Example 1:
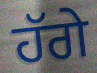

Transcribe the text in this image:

ਹੱਗੇ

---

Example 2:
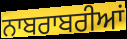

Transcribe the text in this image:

ਨਾਬਰਾਬਰੀਆਂ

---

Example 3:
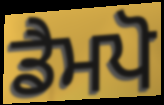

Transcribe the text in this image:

ਡੈਮਪੋ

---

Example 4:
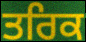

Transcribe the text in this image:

ਤਰਿਕ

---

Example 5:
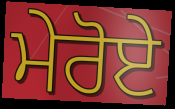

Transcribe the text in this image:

ਮੇਰੋਏ